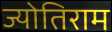
ज्योतिराम